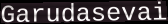
Garudasevai